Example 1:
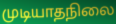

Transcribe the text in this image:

முடியாதநிலை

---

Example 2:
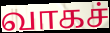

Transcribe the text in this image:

வாகச்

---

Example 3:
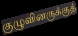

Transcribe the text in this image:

குழுவினருக்குத்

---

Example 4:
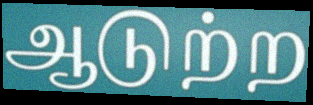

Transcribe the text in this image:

ஆடுற்ற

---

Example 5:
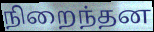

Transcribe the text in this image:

நிறைந்தன